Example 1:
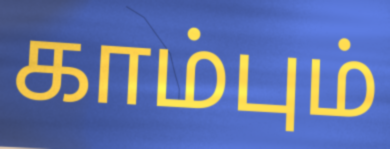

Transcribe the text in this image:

காம்பும்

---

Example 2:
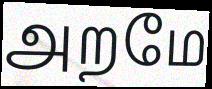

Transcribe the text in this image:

அறமே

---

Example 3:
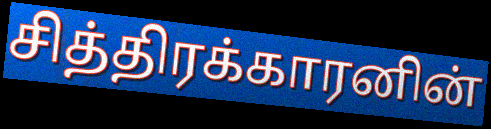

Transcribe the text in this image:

சித்திரக்காரனின்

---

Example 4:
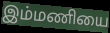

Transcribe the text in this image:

இம்மணியை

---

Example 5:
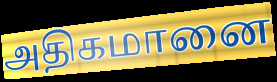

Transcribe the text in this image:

அதிகமானை